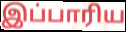
இப்பாரிய